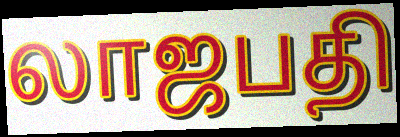
லாஜபதி